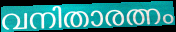
വനിതാരത്നം